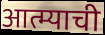
आत्म्याची